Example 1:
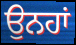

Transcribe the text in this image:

ਉਨਹਾਂ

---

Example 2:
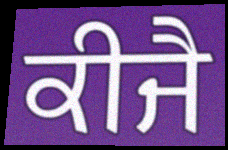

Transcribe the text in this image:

ਕੀਜੈ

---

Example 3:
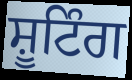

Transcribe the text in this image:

ਸ਼ੂਟਿੰਗ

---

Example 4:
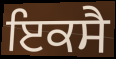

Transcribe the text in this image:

ਇਕਸੈ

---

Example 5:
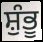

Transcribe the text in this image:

ਸ਼ੁੰਭੂ